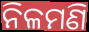
ନିଳମଣି